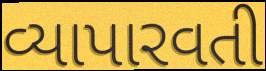
વ્યાપારવતી